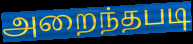
அறைந்தபடி